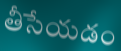
తీసేయడం